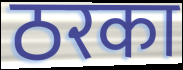
ठरका